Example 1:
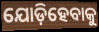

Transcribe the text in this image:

ଯୋଡ଼ିହେବାକୁ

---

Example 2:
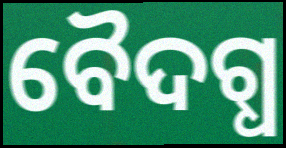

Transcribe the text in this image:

ବୈଦଗ୍ଧ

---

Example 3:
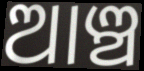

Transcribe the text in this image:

ଆଞ୍ଚ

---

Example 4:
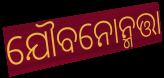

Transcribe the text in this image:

ଯୌବନୋନ୍ମତ୍ତା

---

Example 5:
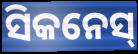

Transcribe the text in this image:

ସିକନେସ୍